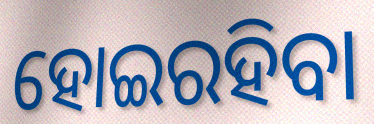
ହୋଇରହିବା